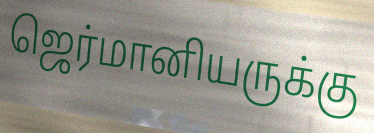
ஜெர்மானியருக்கு